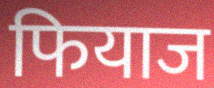
फियाज